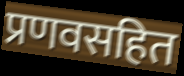
प्रणवसहित